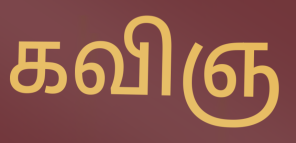
கவிஞ